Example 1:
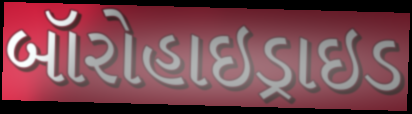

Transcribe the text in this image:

બૉરોહાઇડ્રાઇડ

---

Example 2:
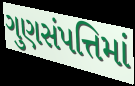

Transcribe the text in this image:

ગુણસંપત્તિમાં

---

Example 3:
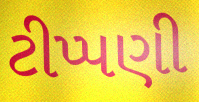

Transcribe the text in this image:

ટીપ્પણી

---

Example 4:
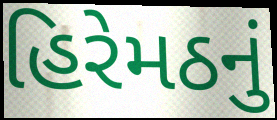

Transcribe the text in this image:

હિરેમઠનું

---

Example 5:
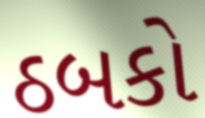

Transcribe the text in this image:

ઠબકો